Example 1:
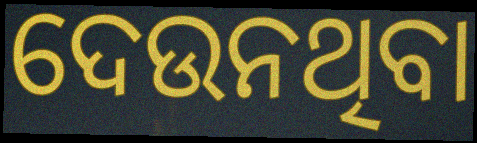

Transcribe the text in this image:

ଦେଉନଥିବା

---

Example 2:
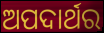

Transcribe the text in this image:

ଅପଦାର୍ଥର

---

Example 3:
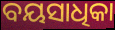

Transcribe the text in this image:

ବୟସାଧିକା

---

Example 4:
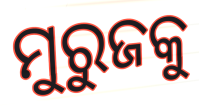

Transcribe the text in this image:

ମୁରୁଜକୁ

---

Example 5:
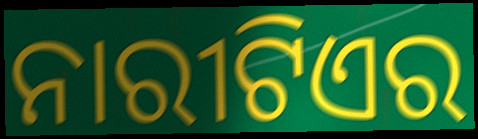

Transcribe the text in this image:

ନାରୀଟିଏର